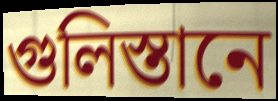
গুলিস্তানে